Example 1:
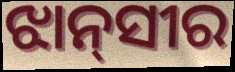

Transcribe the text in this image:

ଝାନ୍‌ସୀର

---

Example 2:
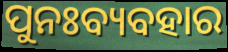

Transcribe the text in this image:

ପୁନଃବ୍ୟବହାର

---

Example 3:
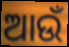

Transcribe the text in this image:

ଆଉଁ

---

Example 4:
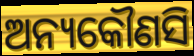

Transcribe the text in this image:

ଅନ୍ୟକୌଣସି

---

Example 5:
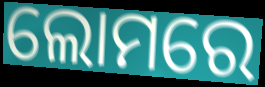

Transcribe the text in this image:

ଲୋମରେ